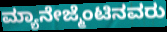
ಮ್ಯಾನೇಜ್ಮೆಂಟಿನವರು